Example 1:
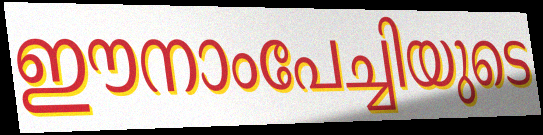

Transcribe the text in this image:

ഈനാംപേച്ചിയുടെ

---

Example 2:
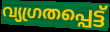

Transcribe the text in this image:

വ്യഗ്രതപ്പെട്ട്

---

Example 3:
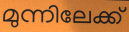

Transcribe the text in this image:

മുന്നിലേക്ക്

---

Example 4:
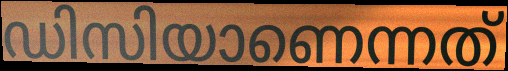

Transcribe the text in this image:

ഡിസിയാണെന്നത്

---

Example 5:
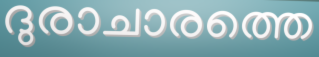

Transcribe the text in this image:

ദുരാചാരത്തെ